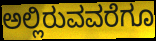
ಅಲ್ಲಿರುವವರೆಗೂ